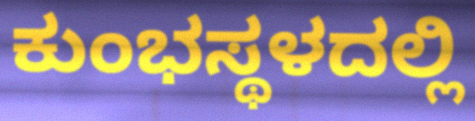
ಕುಂಭಸ್ಥಳದಲ್ಲಿ